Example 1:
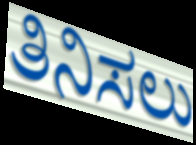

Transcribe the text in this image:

ತಿನಿಸಲು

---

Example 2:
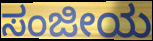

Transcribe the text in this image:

ಸಂಜೀಯ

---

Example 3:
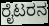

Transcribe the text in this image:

ರೈಟರನ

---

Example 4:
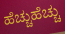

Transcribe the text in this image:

ಹೆಚ್ಚುಹೆಚ್ಚು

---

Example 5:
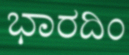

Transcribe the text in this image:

ಭಾರದಿಂ